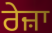
ਰੇਜ਼ਾ